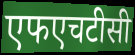
एफएचटीसी